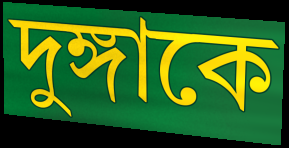
দুঙ্গাকে